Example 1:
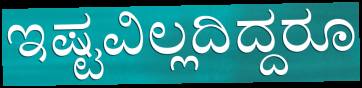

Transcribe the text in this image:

ಇಷ್ಟವಿಲ್ಲದಿದ್ದರೂ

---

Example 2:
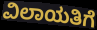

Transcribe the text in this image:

ವಿಲಾಯತಿಗೆ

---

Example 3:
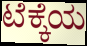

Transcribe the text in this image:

ಟೆಕ್ಕೆಯ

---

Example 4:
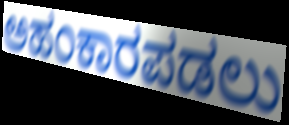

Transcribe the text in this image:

ಅಹಂಕಾರಪಡಲು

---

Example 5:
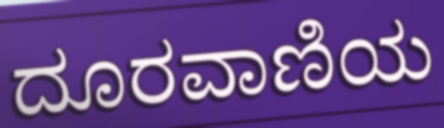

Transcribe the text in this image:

ದೂರವಾಣಿಯ